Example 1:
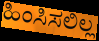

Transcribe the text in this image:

ಹಿಂಸಿಸಲಿಲ್ಲ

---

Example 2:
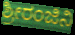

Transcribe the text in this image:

ಶ್ರೀರಂಜಿನಿ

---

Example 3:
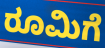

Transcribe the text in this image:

ರೂಮಿಗೆ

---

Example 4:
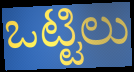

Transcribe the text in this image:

ಒಟ್ಟಿಲು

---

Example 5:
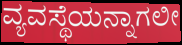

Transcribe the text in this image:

ವ್ಯವಸ್ಥೆಯನ್ನಾಗಲೀ